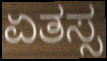
ಏತಸ್ಸ